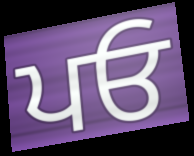
ਪਓ